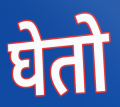
घेतो